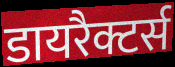
डायरैक्टर्स